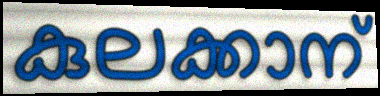
കുലക്കാന്